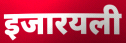
इजारयली